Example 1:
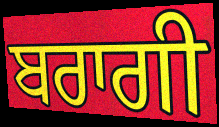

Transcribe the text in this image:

ਬਰਾਗੀ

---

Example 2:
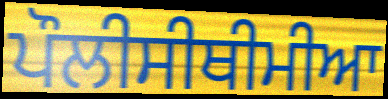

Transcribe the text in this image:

ਪੌਲੀਸੀਥੀਮੀਆ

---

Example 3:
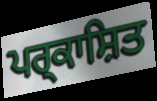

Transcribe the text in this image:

ਪਰ੍ਕਾਸ਼ਿਤ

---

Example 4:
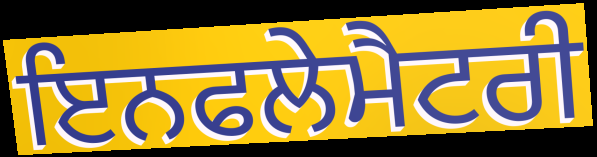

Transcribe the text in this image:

ਇਨਫਲੇਮੈਟਰੀ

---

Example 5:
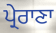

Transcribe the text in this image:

ਪ੍ਰੇਰਾਣਾ